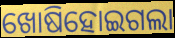
ଖୋଷିହୋଇଗଲା